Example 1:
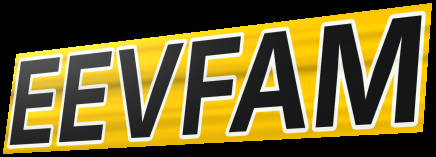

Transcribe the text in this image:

EEVFAM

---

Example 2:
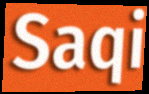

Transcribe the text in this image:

Saqi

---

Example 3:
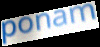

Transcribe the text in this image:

ponam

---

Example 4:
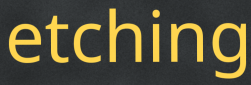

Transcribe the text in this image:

etching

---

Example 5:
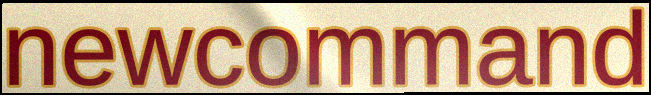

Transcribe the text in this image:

newcommand